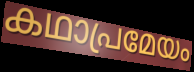
കഥാപ്രമേയം